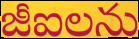
జీఐలను